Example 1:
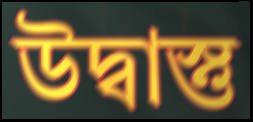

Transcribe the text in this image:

উদ্বাস্তু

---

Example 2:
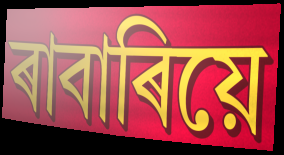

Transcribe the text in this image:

ৰাবাৰিয়ে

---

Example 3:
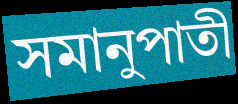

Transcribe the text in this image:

সমানুপাতী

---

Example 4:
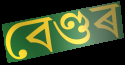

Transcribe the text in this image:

বেণ্ডৰ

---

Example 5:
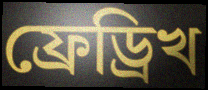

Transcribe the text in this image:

ফ্ৰেড্ৰিখ